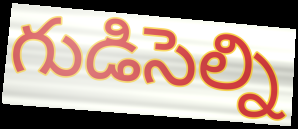
గుడిసెల్ని